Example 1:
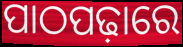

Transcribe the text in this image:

ପାଠପଢ଼ାରେ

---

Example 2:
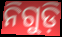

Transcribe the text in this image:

ନିଗୁଡ଼ି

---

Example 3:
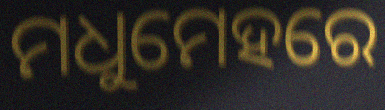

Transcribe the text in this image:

ମଧୁମେହରେ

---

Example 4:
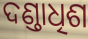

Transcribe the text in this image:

ଦଣ୍ଡାଧିଶ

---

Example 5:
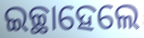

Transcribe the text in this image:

ଇଚ୍ଛାହେଲେ